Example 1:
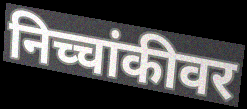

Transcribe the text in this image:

निच्चांकीवर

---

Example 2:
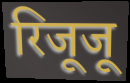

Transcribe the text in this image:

रिजूजू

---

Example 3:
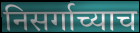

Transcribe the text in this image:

निसर्गाच्याच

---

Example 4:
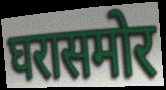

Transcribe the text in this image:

घरासमोर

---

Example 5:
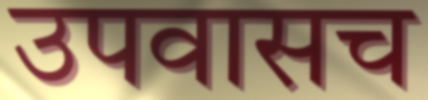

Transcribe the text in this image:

उपवासच